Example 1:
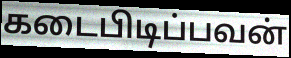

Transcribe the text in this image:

கடைபிடிப்பவன்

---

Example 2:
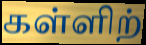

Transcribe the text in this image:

கள்ளிற்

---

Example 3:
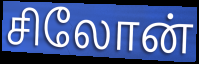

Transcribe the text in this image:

சிலோன்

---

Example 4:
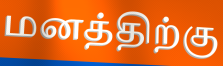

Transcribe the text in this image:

மனத்திற்கு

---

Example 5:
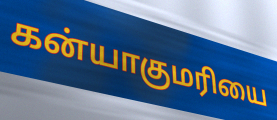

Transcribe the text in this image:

கன்யாகுமரியை